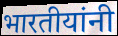
भारतीयांनी